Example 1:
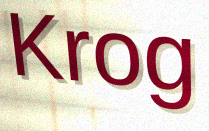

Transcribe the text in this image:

Krog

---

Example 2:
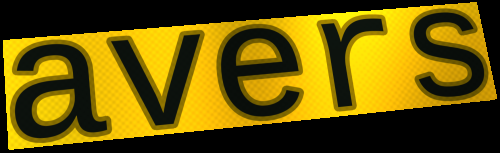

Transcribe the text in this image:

avers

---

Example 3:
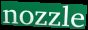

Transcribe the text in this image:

nozzle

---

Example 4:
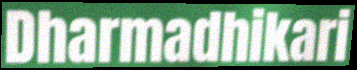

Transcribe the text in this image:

Dharmadhikari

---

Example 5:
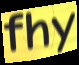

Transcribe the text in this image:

fhy